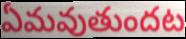
ఏమవుతుందట